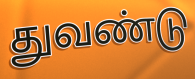
துவண்டு